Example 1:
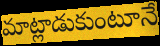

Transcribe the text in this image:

మాట్లాడుకుంటూనే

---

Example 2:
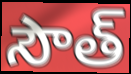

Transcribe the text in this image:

సౌత్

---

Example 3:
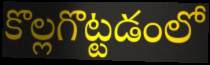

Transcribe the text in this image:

కొల్లగొట్టడంలో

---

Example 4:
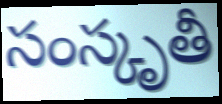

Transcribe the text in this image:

సంస్కృతీ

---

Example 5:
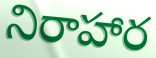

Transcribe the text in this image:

నిరాహార